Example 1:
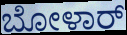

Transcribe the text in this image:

ಬೋಳಾರ್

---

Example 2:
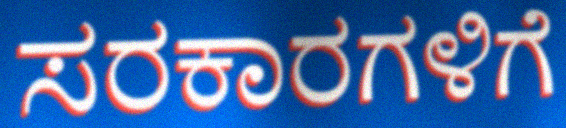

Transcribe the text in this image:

ಸರಕಾರಗಳಿಗೆ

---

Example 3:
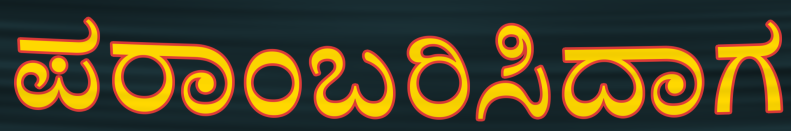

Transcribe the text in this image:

ಪರಾಂಬರಿಸಿದಾಗ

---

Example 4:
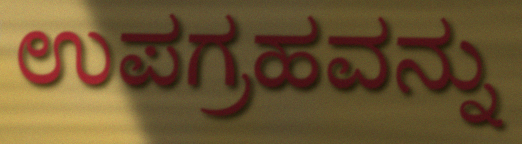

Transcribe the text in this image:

ಉಪಗ್ರಹವನ್ನು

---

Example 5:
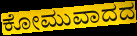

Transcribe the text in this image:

ಕೋಮುವಾದದ